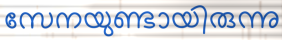
സേനയുണ്ടായിരുന്നു